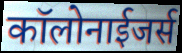
कॉलोनाईजर्स